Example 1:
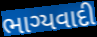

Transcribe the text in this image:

ભાગ્યવાદી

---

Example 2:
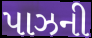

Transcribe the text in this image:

પાઝની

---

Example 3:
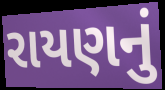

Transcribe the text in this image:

રાયણનું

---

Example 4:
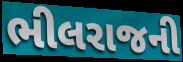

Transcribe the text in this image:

ભીલરાજની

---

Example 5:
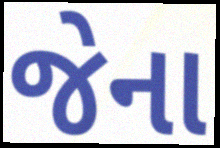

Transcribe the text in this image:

જેના